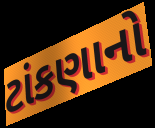
ટાંકણાનો